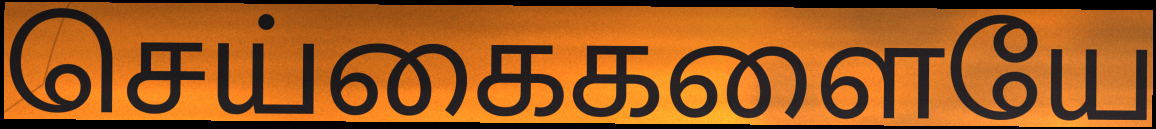
செய்கைகளையே